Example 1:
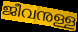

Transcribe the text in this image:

ജീവനുള്ള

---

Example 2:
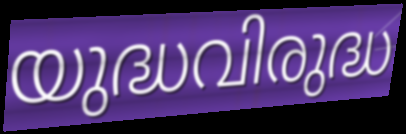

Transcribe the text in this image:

യുദ്ധവിരുദ്ധ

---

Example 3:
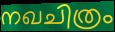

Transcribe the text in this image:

നഖചിത്രം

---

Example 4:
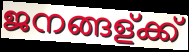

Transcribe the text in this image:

ജനങ്ങള്ക്ക്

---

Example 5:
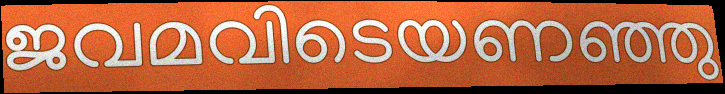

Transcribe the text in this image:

ജവമവിടെയണഞ്ഞു